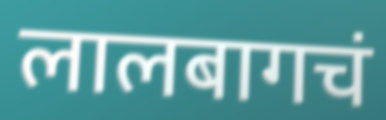
लालबागचं